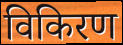
विकिरण